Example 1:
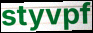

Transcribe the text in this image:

styvpf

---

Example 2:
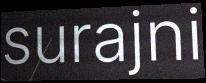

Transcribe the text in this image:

surajni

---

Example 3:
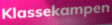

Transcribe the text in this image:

Klassekampen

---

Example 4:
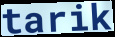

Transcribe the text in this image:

tarik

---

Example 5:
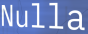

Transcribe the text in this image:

Nulla